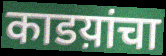
काडय़ांचा